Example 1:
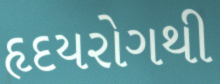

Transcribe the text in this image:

હૃદયરોગથી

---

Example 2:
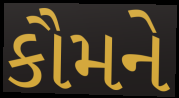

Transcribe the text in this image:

કૌમને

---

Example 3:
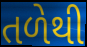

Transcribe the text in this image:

તળેથી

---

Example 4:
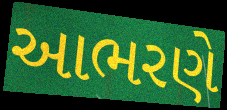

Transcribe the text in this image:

આભરણે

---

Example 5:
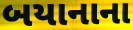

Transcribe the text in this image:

બયાનાના